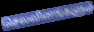
செலவினங்களும்